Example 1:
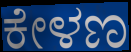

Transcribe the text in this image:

ಕೇಳಣ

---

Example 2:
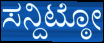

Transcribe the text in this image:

ಸನ್ದಿಟ್ಠೋ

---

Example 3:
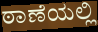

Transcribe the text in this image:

ಠಾಣೆಯಲ್ಲಿ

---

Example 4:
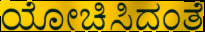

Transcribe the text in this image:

ಯೋಚಿಸಿದಂತೆ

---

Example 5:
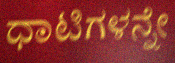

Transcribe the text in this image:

ಧಾಟಿಗಳನ್ನೇ